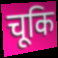
चूकि